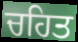
ਚਹਿਤ